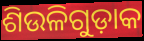
ଶିଉଳିଗୁଡ଼ାକ